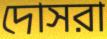
দোসরা